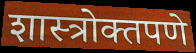
शास्त्रोक्तपणे